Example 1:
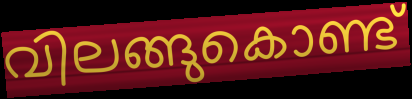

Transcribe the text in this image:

വിലങ്ങുകൊണ്ട്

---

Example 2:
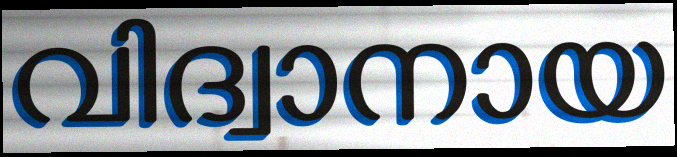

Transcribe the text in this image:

വിദ്വാനായ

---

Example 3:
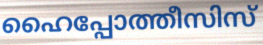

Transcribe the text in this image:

ഹൈപ്പോത്തീസിസ്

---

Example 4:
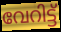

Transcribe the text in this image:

വേറിട്ട്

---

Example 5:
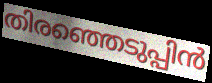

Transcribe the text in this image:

തിരഞ്ഞെടുപ്പിൻ